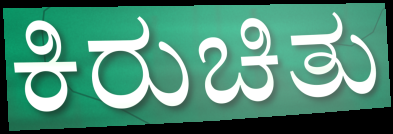
ಕಿರುಚಿತು